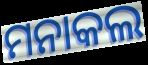
ମନାକଲ